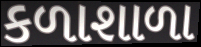
કળાશાળા